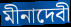
মীনাদেবী